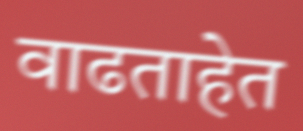
वाढताहेत